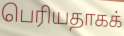
பெரியதாகக்